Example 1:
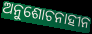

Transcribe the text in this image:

ଅନୁଶୋଚନାହୀନ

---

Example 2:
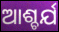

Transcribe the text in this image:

ଆଶ୍ଚର୍ଯ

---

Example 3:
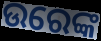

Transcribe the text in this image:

ଉରେଙ୍କ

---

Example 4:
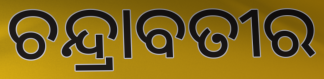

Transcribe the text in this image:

ଚନ୍ଦ୍ରାବତୀର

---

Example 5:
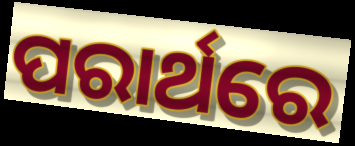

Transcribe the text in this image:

ପରାର୍ଥରେ